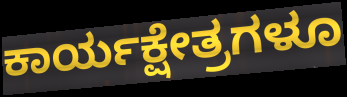
ಕಾರ್ಯಕ್ಷೇತ್ರಗಳೂ